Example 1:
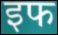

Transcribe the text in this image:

इफ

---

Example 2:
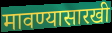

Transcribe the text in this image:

मावण्यासारखी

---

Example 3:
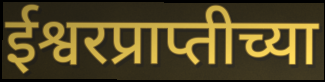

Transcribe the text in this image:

ईश्वरप्राप्तीच्या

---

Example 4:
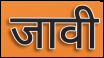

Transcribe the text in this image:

जावी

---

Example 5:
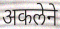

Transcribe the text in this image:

अकलेने